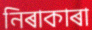
নিৰাকাৰা